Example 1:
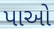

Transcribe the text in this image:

પાઓ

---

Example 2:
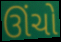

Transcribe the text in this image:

ઊંચો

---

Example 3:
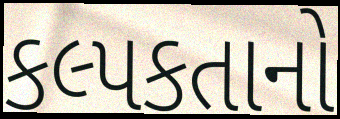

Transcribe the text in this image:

કલ્પકતાનો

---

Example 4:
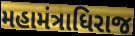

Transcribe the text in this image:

મહામંત્રાધિરાજ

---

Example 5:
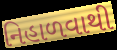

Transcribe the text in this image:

નિહાળવાથી